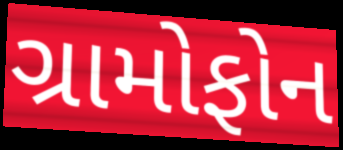
ગ્રામોફોન